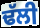
ਢੱਲੀ